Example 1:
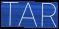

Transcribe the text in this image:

TAR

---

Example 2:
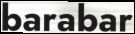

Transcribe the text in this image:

barabar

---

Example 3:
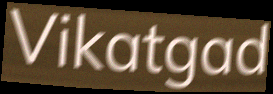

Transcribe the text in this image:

Vikatgad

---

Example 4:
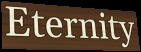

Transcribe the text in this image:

Eternity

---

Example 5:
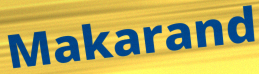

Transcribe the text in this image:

Makarand